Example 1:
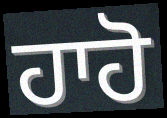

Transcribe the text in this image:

ਹਾਹੋ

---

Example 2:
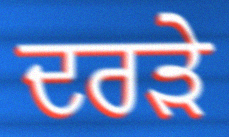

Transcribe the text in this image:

ਦਰੜੇ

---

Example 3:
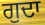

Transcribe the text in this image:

ਗੁਦਾ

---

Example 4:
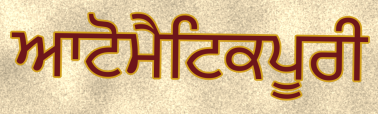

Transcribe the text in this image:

ਆਟੋਮੈਟਿਕਪੂਰੀ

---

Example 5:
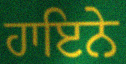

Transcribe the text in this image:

ਹਾਇਨੇ